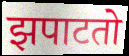
झपाटतो